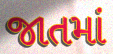
જાતમાં